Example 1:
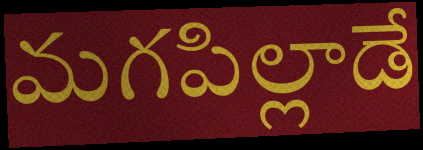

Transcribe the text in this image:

మగపిల్లాడే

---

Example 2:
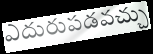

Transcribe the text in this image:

ఎదురుపడవచ్చు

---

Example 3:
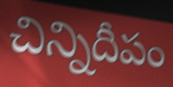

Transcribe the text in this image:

చిన్నిదీపం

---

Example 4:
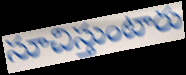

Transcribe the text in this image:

సూచిస్తుంటారు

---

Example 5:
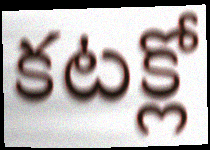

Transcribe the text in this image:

కటక్లో